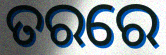
ତରରେ